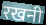
रखनी